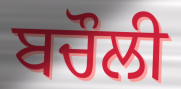
ਬਚੌਲੀ